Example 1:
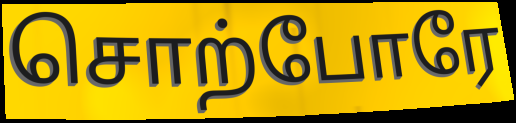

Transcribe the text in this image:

சொற்போரே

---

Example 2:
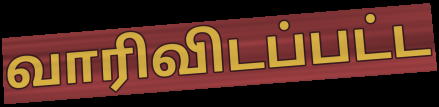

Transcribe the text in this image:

வாரிவிடப்பட்ட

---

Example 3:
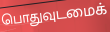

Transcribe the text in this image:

பொதுவுடமைக்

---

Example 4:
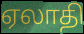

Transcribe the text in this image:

ஏலாதி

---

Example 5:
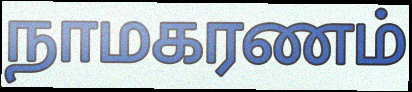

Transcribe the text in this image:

நாமகரணம்